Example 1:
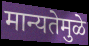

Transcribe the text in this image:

मान्यतेमुळे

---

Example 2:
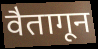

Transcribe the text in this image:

वैतागून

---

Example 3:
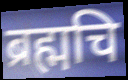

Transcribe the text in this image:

ब्रह्मचि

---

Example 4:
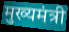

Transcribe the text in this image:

मुख्यमंत्री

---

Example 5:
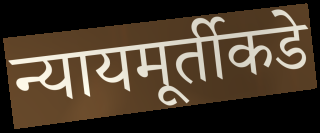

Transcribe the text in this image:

न्यायमूर्तीकडे